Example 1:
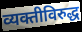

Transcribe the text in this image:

व्यक्तीविरुद्ध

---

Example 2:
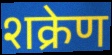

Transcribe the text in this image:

शक्रेण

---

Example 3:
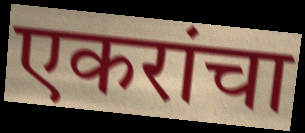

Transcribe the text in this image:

एकरांचा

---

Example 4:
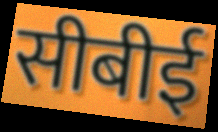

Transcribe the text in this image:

सीबीई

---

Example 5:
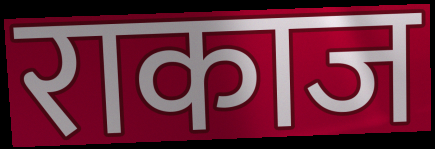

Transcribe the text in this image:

राकाज